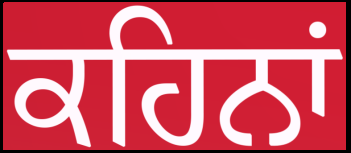
ਕਹਿਨਾਂ